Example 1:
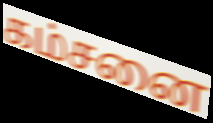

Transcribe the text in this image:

கம்சனை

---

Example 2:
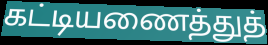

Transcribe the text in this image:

கட்டியணைத்துத்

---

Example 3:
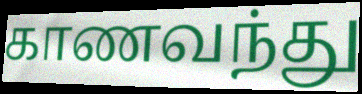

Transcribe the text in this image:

காணவந்து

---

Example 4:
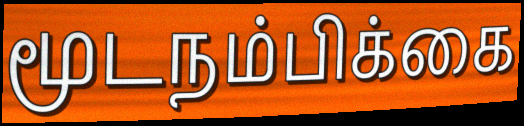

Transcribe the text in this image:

மூடநம்பிக்கை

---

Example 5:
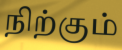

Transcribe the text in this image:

நிற்கும்